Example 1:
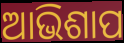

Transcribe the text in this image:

ଆଭିଶାପ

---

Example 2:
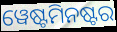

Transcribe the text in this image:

ୱେଷ୍ଟମିନଷ୍ଟର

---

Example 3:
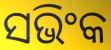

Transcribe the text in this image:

ସଭିଂକ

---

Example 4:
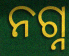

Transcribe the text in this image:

ନଗ୍ନ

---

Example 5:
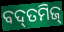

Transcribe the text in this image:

ବଦ୍‌ତମିଜ୍